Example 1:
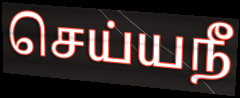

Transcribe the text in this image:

செய்யநீ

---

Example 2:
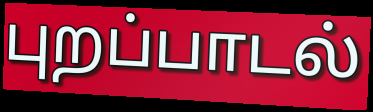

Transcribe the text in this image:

புறப்பாடல்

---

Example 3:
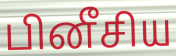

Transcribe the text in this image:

பினீசிய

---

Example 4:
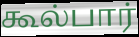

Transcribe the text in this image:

கூல்பார்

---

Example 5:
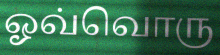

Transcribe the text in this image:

ஓவ்வொரு